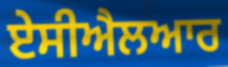
ਏਸੀਐਲਆਰ